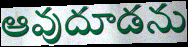
ఆవుదూడను